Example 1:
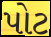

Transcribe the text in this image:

પોટ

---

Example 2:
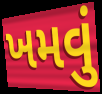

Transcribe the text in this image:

ખમવું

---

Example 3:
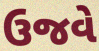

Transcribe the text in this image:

ઉજવે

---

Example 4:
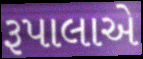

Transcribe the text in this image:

રૂપાલાએ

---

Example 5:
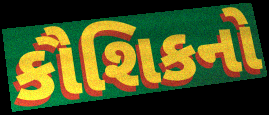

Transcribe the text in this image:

કૌશિકનો